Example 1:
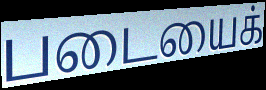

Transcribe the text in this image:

படையைக்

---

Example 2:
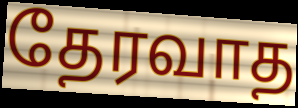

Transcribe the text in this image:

தேரவாத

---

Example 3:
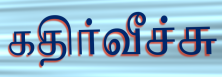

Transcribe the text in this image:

கதிர்வீச்சு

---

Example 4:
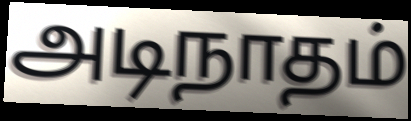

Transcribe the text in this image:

அடிநாதம்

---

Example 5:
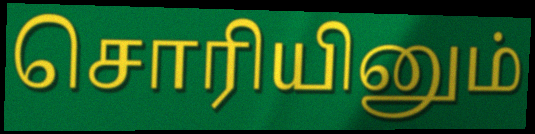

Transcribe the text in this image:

சொரியினும்